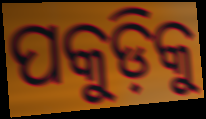
ପକୁଡ଼ିକୁ